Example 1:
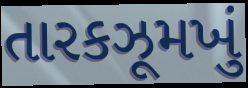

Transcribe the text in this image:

તારકઝૂમખું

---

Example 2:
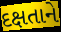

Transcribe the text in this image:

દક્ષતાને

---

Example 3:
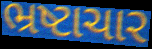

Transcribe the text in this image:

ભ્રષ્ટાચાર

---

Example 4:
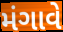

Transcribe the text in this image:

મંગાવે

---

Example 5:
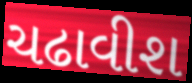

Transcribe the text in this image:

ચઢાવીશ